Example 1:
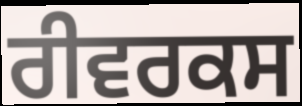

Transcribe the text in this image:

ਰੀਵਰਕਸ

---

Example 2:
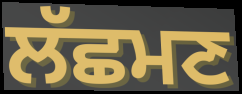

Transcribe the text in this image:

ਲੱਛਮਣ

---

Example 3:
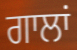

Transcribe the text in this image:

ਗਾਲਾਂ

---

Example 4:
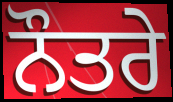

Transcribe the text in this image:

ਨੌਤਰੇ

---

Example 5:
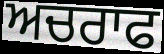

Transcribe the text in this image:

ਅਚਰਾਫ